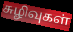
சுழிவுகள்